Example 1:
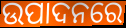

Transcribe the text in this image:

ଉପାଦନରେ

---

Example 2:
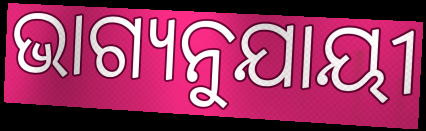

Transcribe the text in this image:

ଭାଗ୍ୟନୁଯାୟୀ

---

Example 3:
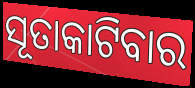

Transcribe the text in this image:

ସୂତାକାଟିବାର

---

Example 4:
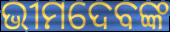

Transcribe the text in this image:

ଭୀମଦେବଙ୍କ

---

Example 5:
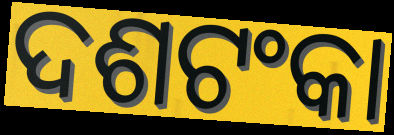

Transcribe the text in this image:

ଦଶଟଂକା